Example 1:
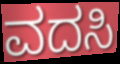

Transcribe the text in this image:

ವದಸಿ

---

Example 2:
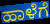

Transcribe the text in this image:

ಹಾಳೆಗೆ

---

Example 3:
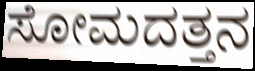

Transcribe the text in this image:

ಸೋಮದತ್ತನ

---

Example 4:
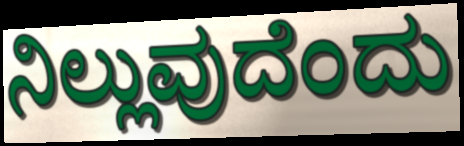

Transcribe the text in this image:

ನಿಲ್ಲುವುದೆಂದು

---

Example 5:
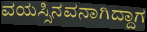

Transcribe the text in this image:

ವಯಸ್ಸಿನವನಾಗಿದ್ದಾಗ